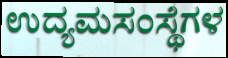
ಉದ್ಯಮಸಂಸ್ಥೆಗಳ